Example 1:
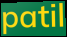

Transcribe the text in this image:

patil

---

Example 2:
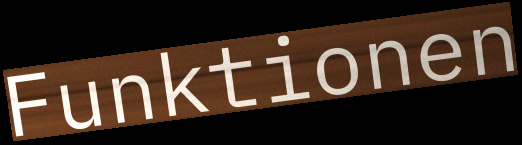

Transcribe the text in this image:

Funktionen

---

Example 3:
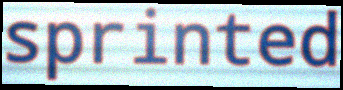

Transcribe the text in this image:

sprinted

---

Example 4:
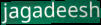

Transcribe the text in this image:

jagadeesh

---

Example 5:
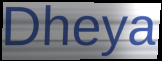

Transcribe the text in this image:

Dheya